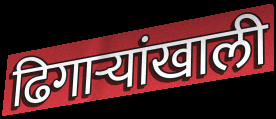
ढिगाऱ्यांखाली